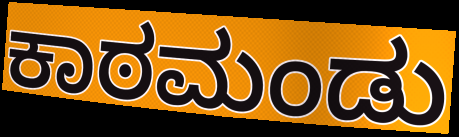
ಕಾಠಮಂಡು